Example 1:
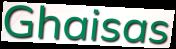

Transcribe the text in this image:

Ghaisas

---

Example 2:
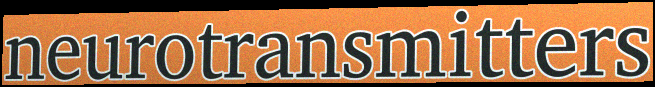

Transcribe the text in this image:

neurotransmitters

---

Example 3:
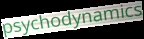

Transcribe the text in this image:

psychodynamics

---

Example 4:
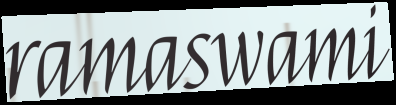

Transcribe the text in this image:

ramaswami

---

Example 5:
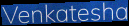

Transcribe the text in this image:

Venkatesha